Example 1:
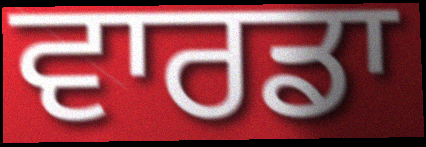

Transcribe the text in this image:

ਵਾਰਡਾ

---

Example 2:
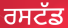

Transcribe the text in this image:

ਰਸਟੱਡ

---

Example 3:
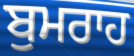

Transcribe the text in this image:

ਬੁਮਰਾਹ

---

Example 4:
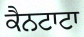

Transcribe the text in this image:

ਕੈਨਟਾਟਾ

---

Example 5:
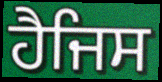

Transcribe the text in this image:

ਹੈਜਿਸ